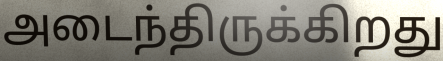
அடைந்திருக்கிறது